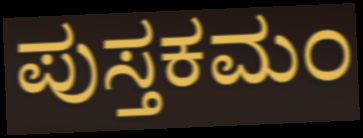
ಪುಸ್ತಕಮಂ